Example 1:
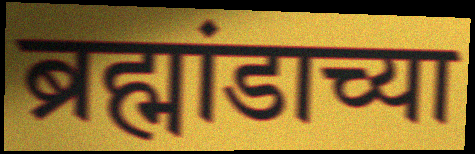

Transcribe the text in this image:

ब्रह्मांडाच्या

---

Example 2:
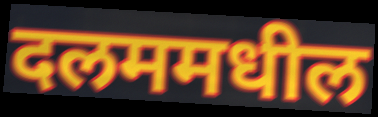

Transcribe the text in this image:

दलममधील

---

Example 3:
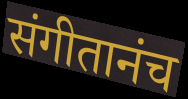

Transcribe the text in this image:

संगीतानंच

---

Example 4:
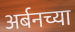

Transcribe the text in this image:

अर्बनच्या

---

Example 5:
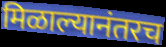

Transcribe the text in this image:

मिळाल्यानंतरच